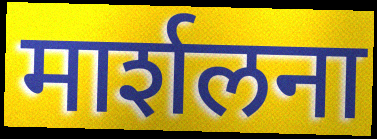
मार्शलना